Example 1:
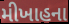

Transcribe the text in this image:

મીખાહના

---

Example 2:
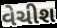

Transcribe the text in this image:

વેચીશ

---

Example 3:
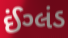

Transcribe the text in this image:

ઈંગ્લંડ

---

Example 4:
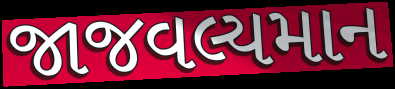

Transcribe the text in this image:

જાજવલ્યમાન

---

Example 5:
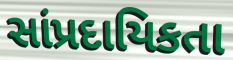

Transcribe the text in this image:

સાંપ્રદાયિકતા